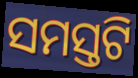
ସମସ୍ତଟି